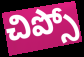
చిప్సో